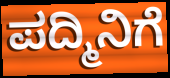
ಪದ್ಮಿನಿಗೆ